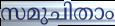
സമുചിതാം